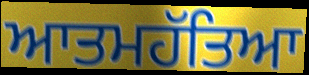
ਆਤਮਹੱਤਿਆ